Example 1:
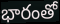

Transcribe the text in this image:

భారంతో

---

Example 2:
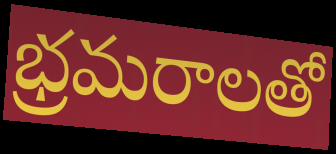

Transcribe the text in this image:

భ్రమరాలతో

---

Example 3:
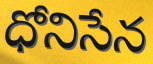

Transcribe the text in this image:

ధోనిసేన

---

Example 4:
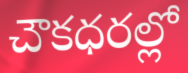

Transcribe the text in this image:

చౌకధరల్లో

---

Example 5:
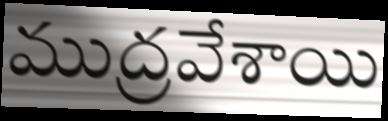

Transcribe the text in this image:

ముద్రవేశాయి